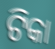
ଟିକା